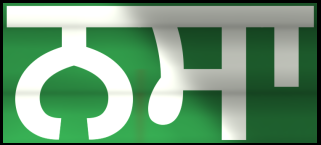
ਨਸਾ